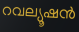
റവല്യൂഷൻ